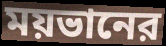
ময়ভানের